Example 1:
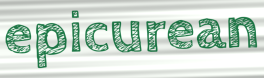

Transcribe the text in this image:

epicurean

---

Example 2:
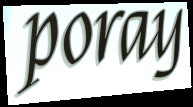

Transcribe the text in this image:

poray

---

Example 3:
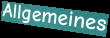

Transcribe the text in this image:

Allgemeines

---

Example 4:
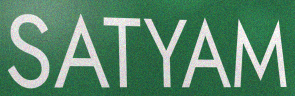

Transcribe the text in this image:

SATYAM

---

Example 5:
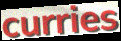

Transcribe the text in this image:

curries